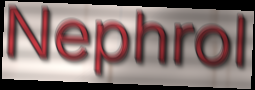
Nephrol